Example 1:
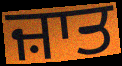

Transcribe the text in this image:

ਜ਼ਾਤ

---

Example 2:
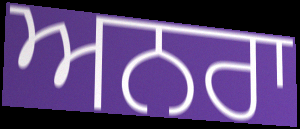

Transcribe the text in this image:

ਅਨਰਾ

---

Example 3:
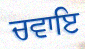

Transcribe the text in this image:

ਚਵਾਇ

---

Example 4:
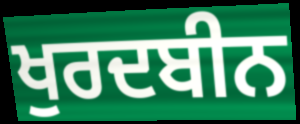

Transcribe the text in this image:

ਖੁਰਦਬੀਨ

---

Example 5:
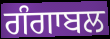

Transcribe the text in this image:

ਗੰਗਾਬਲ